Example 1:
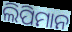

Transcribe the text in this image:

ଲିପିମାନ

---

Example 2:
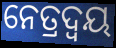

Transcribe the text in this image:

ନେତ୍ରଦ୍ୱୟ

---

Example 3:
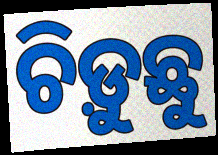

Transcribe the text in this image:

ଚିଡ଼ୁଛୁ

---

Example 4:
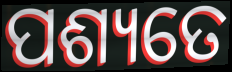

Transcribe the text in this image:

ପଶ୍ୟତେ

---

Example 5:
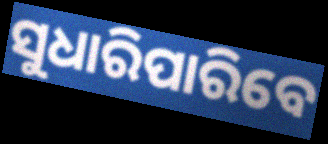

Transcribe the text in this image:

ସୁଧାରିପାରିବେ